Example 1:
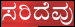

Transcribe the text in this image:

ಸರಿದೆವು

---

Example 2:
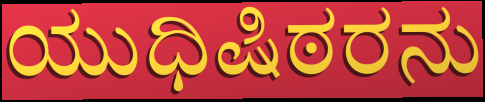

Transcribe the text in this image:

ಯುಧಿಷಿಠರನು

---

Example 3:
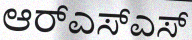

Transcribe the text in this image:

ಆರ್‌ಎಸ್ಎಸ್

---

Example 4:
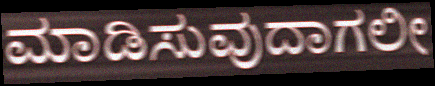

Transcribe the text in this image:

ಮಾಡಿಸುವುದಾಗಲೀ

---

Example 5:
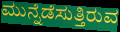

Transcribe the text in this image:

ಮುನ್ನೆಡೆಸುತ್ತಿರುವ